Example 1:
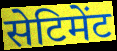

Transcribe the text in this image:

सेटिमेंट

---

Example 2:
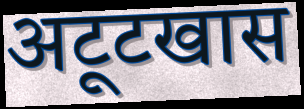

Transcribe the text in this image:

अटूटखास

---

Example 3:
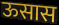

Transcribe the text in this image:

ऊसास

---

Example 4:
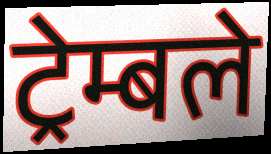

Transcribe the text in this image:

ट्रेम्बले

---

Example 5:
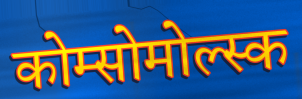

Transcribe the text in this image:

कोम्सोमोल्स्क